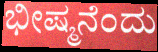
ಭೀಷ್ಮನೆಂದು